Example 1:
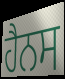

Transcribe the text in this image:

ਹੈਨਸ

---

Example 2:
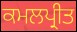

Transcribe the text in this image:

ਕਮਲਪ੍ਰੀਤ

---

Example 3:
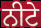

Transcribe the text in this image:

ਨੀਟੇ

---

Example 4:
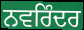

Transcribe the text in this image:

ਨਵਰਿੰਦਰ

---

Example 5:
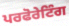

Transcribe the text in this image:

ਪਰਫੋਰੇਟਿੰਗ